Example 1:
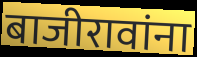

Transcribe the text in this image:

बाजीरावांना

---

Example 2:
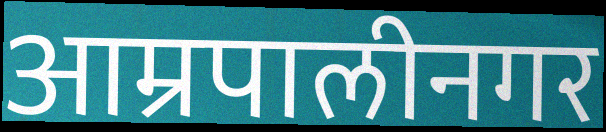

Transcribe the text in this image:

आम्रपालीनगर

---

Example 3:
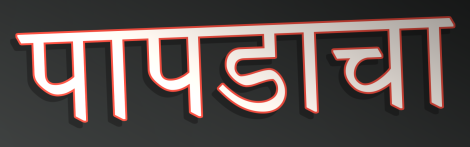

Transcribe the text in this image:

पापडाचा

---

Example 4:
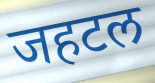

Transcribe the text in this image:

जहटल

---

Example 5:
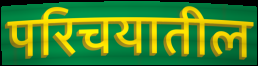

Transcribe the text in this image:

परिचयातील